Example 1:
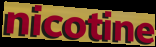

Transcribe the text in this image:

nicotine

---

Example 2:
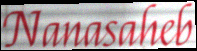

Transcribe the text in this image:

Nanasaheb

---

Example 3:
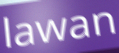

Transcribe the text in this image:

lawan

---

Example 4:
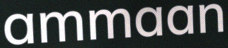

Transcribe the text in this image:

ammaan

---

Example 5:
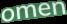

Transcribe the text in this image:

omen